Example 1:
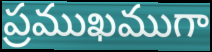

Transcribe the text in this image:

ప్రముఖముగా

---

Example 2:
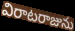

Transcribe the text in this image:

విరాటరాజును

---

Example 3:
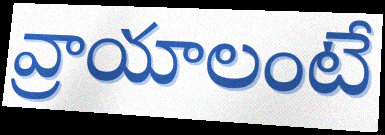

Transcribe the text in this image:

వ్రాయాలంటే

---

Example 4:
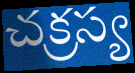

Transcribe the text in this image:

చక్రస్య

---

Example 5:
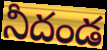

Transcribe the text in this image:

నీదండ